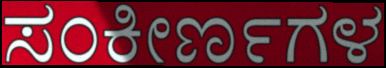
ಸಂಕೀರ್ಣಗಳ